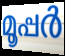
മൂപ്പർ